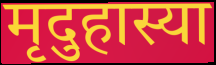
मृदुहास्या